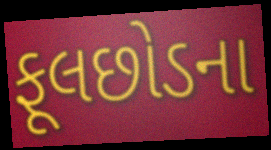
ફૂલછોડના